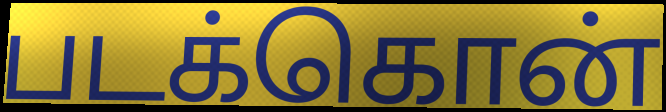
படக்கொன்